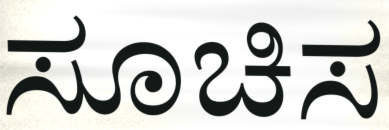
ಸೂಚಿಸ